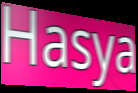
Hasya